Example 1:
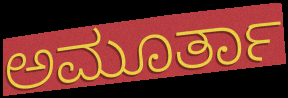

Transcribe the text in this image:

ಅಮೂರ್ತಾ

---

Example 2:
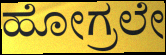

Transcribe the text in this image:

ಹೋಗ್ರಲೇ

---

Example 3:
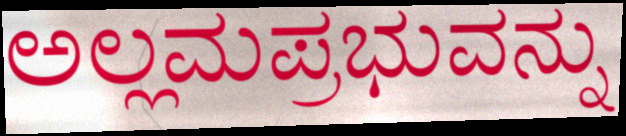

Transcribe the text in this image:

ಅಲ್ಲಮಪ್ರಭುವನ್ನು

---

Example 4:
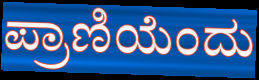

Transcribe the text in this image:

ಪ್ರಾಣಿಯೆಂದು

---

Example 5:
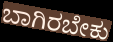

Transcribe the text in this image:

ಬಾಗಿರಬೇಕು